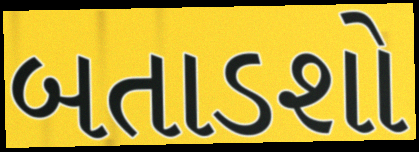
બતાડશો